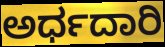
ಅರ್ಧದಾರಿ